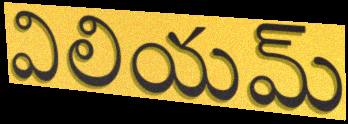
విలియమ్